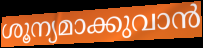
ശൂന്യമാക്കുവാൻ